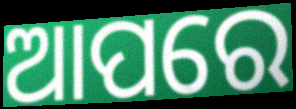
ଆପରେ